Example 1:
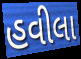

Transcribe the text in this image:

હવીલા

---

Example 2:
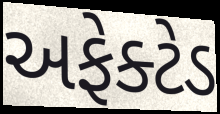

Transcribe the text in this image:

અફેક્ટેડ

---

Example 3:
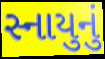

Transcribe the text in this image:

સ્નાયુનું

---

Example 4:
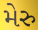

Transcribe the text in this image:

મેરુ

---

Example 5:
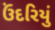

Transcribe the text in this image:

ઉંદરિયું